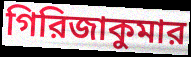
গিরিজাকুমার